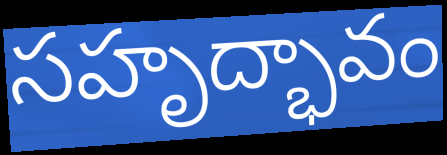
సహృద్భావం